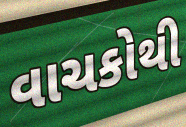
વાચકોથી